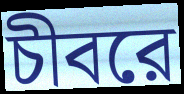
চীবরে